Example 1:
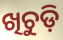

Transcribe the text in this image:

ଖିଚୁଡ଼ି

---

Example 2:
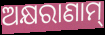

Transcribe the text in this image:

ଅକ୍ଷରାଣାମ୍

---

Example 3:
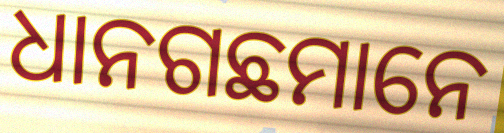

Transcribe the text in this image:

ଧାନଗଛମାନେ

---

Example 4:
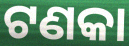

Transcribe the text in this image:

ଟଣକା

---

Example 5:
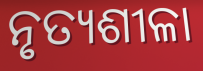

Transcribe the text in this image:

ନୃତ୍ୟଶୀଳା